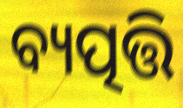
ବ୍ୟତ୍ପତ୍ତି